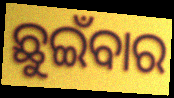
ଛୁଇଁବାର